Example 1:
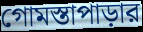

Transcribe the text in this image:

গোমস্তাপাড়ার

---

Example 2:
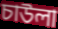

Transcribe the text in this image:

চাউলা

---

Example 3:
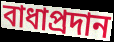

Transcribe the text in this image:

বাধাপ্রদান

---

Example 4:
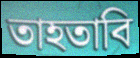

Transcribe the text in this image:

তাহতাবি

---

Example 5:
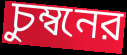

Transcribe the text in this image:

চুম্বনের